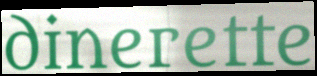
dinerette